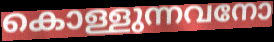
കൊള്ളുന്നവനോ